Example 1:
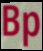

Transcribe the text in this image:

Bp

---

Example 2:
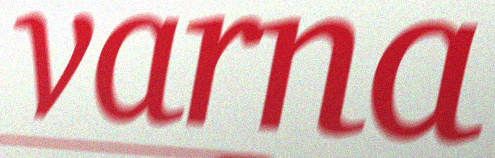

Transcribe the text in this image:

varna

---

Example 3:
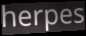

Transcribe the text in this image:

herpes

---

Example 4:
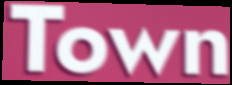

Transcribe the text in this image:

Town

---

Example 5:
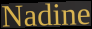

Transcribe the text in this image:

Nadine